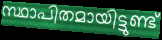
സ്ഥാപിതമായിട്ടുണ്ട്